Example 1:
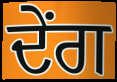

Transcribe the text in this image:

ਦੇਂਗ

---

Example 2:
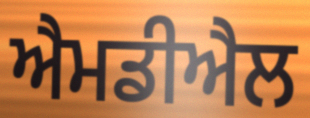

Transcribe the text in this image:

ਐਮਡੀਐਲ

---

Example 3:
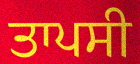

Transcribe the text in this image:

ਤਾਪਸੀ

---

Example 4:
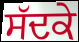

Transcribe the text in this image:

ਸੱਦਕੇ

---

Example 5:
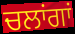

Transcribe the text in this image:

ਚਲਾਂਗਾਂ